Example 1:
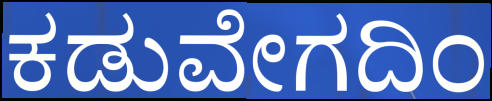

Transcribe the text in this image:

ಕಡುವೇಗದಿಂ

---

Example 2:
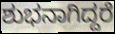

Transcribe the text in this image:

ಶುಭನಾಗಿದ್ದರೆ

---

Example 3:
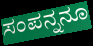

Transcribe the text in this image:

ಸಂಪನ್ನನೂ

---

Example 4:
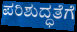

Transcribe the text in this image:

ಪರಿಶುದ್ಧತೆಗೆ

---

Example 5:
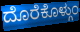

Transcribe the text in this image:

ದೊರೆಕೊಳ್ಗುಂ